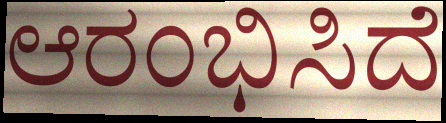
ಆರಂಭಿಸಿದೆ